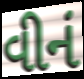
વીનં